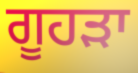
ਗੂਹੜਾ